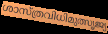
ശാസ്ത്രവിധിമുത്സൃജ്യ